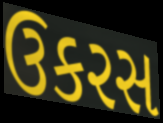
ઉકરસ